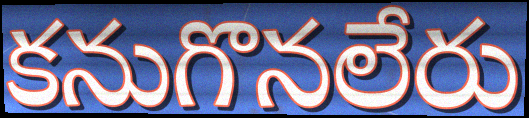
కనుగొనలేరు